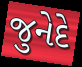
જુનેદે